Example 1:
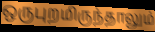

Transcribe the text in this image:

ஒருபுறமிருந்தாலும்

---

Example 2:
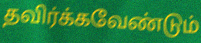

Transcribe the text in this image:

தவிர்க்கவேண்டும்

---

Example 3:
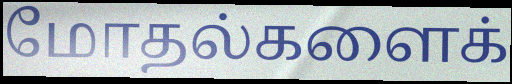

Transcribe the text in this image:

மோதல்களைக்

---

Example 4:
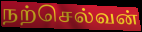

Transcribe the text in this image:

நற்செல்வன்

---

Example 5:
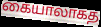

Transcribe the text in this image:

கையாலாகத